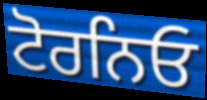
ਟੋਰਨਿਓ